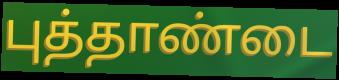
புத்தாண்டை